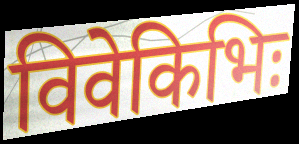
विवेकिभिः